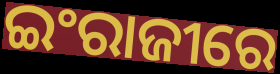
ଇଂରାଜୀରେ